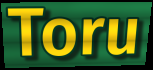
Toru